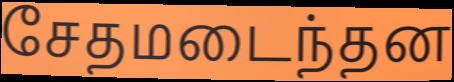
சேதமடைந்தன